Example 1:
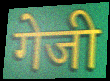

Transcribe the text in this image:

गेजी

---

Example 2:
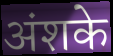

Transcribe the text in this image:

अंशके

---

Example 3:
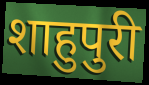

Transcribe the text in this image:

शाहुपुरी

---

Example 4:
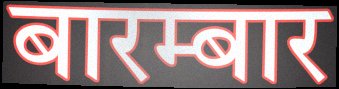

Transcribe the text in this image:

बारम्‍बार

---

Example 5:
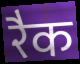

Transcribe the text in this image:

रैक